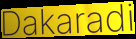
Dakaradi